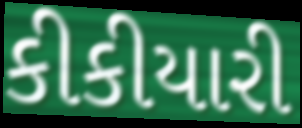
કીકીયારી